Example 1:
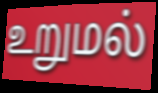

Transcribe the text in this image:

உறுமல்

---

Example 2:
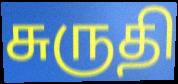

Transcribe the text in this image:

சுருதி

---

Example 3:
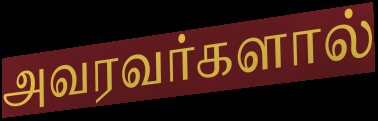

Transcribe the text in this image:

அவரவர்களால்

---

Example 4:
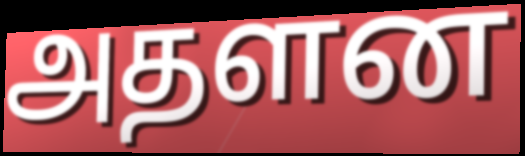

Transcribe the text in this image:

அதளன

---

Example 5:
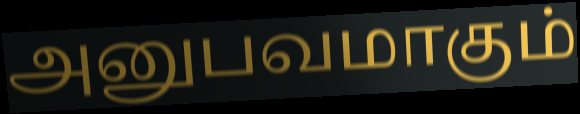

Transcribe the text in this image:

அனுபவமாகும்